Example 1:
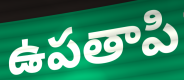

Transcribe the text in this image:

ఉపతాపి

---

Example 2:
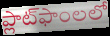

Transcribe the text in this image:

ప్లాట్‌ఫాంలలో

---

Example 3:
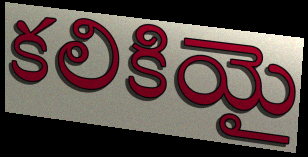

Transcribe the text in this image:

కలికియై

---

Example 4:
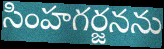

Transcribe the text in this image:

సింహగర్జనను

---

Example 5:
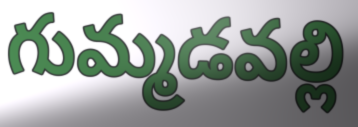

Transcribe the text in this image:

గుమ్మడవల్లి